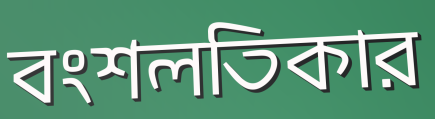
বংশলতিকার